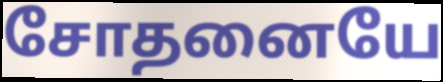
சோதனையே